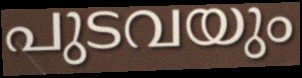
പുടവയും